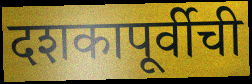
दशकापूर्वीची